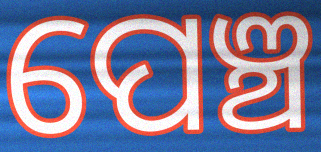
ପେଞ୍ଚ